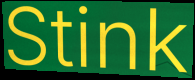
Stink